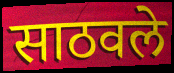
साठवले